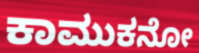
ಕಾಮುಕನೋ